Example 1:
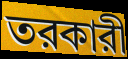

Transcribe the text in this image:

তরকারী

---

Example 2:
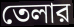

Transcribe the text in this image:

তেলার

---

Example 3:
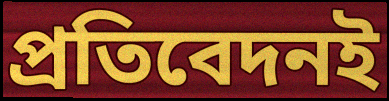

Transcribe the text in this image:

প্রতিবেদনই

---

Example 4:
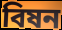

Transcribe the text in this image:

বিষন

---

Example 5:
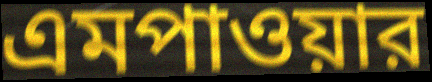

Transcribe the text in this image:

এমপাওয়ার